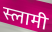
स्लामी